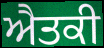
ਐਤਕੀ